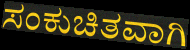
ಸಂಕುಚಿತವಾಗಿ